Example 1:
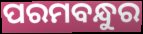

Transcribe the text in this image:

ପରମବନ୍ଧୁର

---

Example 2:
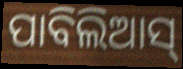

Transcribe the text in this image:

ପାବିଲିଆସ୍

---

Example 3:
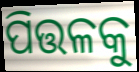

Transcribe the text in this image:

ପିତ୍ତଳକୁ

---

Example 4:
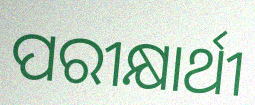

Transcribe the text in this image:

ପରୀକ୍ଷାର୍ଥୀ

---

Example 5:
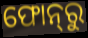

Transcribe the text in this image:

ଫୋନ୍‌ରୁ